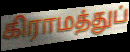
கிராமத்துப்